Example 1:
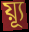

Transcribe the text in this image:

য়্যূ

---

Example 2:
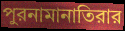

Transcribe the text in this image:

পুরনামানাতিরার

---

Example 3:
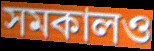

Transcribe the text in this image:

সমকালও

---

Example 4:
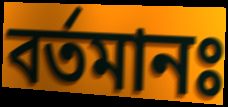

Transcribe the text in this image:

বর্তমানঃ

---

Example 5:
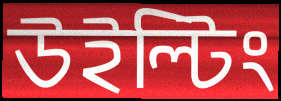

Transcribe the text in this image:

উইল্টিং